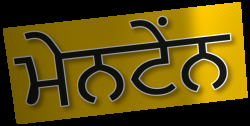
ਮੇਨਟੇਂਨ